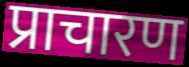
प्राचारण